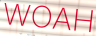
WOAH